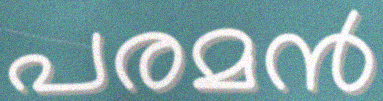
പരമൻ